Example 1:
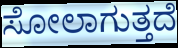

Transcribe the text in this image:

ಸೋಲಾಗುತ್ತದೆ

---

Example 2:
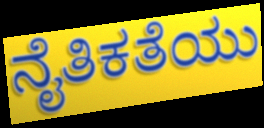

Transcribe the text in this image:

ನೈತಿಕತೆಯು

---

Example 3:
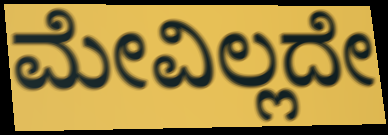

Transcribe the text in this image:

ಮೇವಿಲ್ಲದೇ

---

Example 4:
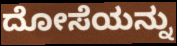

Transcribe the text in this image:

ದೋಸೆಯನ್ನು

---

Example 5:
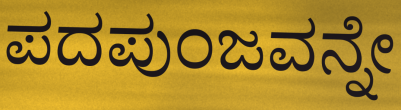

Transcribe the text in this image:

ಪದಪುಂಜವನ್ನೇ